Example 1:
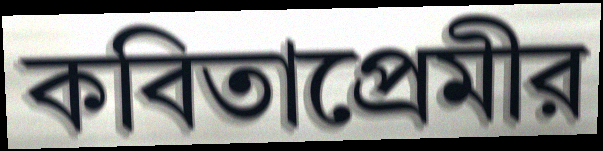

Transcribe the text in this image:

কবিতাপ্রেমীর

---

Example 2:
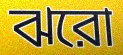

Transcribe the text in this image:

ঝরো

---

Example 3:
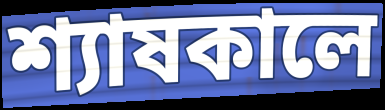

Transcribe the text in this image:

শ্যাষকালে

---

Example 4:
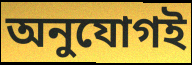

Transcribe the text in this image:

অনুযোগই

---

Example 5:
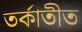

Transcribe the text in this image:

তর্কাতীত